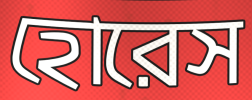
হোরেস